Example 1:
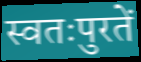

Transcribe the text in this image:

स्वतःपुरतें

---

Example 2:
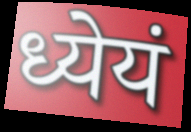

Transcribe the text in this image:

ध्येयं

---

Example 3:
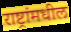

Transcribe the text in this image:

राष्ट्रांमधील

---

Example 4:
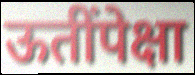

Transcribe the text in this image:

ऊतींपेक्षा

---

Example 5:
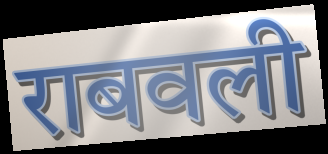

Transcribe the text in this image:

राबवली